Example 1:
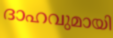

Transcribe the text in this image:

ദാഹവുമായി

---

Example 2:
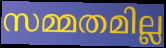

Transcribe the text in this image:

സമ്മതമില്ല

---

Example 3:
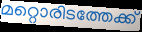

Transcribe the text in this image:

മറ്റൊരിടത്തേക്ക്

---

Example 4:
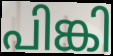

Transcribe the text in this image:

പിങ്കി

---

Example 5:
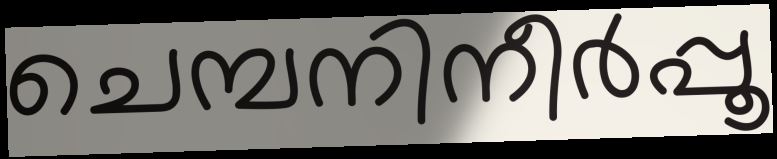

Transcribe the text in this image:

ചെമ്പനിനീർപ്പൂ